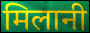
मिलानी